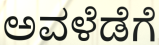
ಅವಳೆಡೆಗೆ